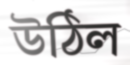
উঠিল